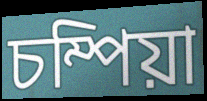
চম্পিয়া